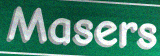
Masers